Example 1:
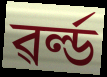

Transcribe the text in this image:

ৱৰ্ল্ড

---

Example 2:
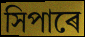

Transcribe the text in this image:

সিপাৰে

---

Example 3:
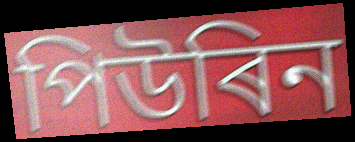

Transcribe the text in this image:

পিউৰিন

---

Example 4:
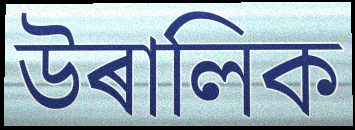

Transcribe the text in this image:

উৰালিক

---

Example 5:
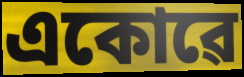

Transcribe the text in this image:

একোৱে